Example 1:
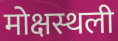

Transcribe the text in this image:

मोक्षस्थली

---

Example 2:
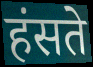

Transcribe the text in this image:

हंसते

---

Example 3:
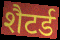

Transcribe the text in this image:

शैटर्ड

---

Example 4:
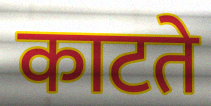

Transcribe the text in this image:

काटते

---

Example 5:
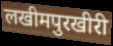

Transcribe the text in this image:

लखीमपुरखीरी